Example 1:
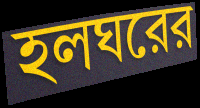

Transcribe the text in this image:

হলঘরের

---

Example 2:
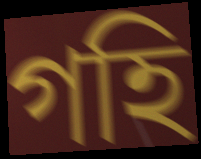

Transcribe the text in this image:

গহি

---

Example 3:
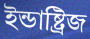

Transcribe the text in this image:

ইন্ডাষ্ট্রিজ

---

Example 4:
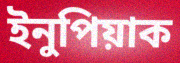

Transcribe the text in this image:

ইনুপিয়াক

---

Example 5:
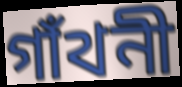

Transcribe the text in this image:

গাঁথনী